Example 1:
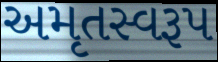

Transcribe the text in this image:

અમૃતસ્વરૂપ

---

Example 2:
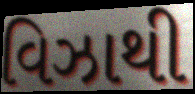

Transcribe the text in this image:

વિઝાથી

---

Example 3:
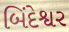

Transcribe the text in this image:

બિંદેશ્વર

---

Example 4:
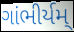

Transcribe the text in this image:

ગાંભીર્યમ્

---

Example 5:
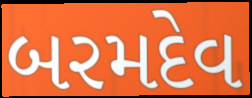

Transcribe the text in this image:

બરમદેવ